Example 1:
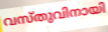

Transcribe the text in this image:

വസ്തുവിനായി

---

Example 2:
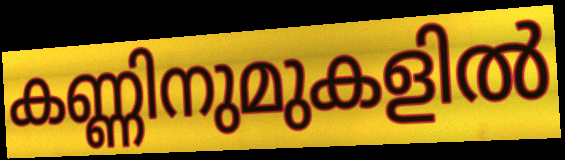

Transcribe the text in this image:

കണ്ണിനുമുകളിൽ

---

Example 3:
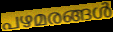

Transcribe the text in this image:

പഴമരങ്ങൾ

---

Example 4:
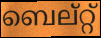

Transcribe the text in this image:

ബെല്റ്റ്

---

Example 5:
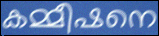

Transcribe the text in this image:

കമ്മീഷനെ